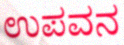
ಉಪವನ